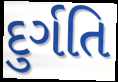
દુર્ગતિ